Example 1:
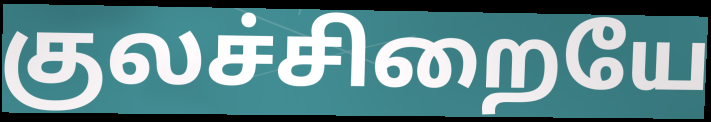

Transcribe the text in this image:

குலச்சிறையே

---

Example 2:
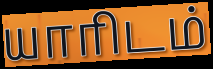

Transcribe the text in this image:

யாரிடம்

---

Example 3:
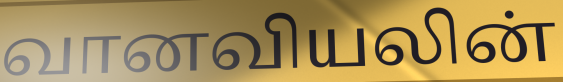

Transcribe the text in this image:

வானவியலின்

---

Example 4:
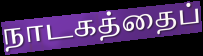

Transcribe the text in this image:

நாடகத்தைப்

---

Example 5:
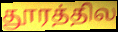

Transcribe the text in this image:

தூரத்தில